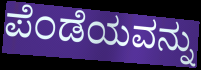
ಪೆಂಡೆಯವನ್ನು